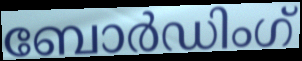
ബോർഡിംഗ്